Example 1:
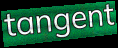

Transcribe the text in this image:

tangent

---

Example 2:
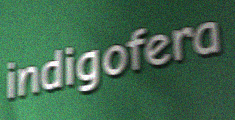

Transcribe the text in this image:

indigofera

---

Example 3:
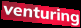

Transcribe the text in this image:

venturing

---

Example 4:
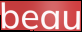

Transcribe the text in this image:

beau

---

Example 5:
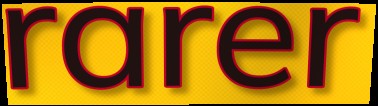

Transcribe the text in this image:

rarer